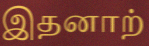
இதனாற்